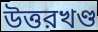
উত্তরখণ্ড